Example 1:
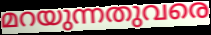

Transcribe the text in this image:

മറയുന്നതുവരെ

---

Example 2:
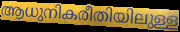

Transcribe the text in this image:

ആധുനികരീതിയിലുള്ള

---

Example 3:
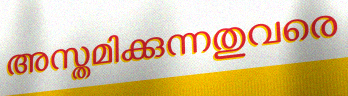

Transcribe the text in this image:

അസ്തമിക്കുന്നതുവരെ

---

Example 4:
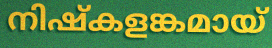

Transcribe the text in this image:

നിഷ്കളങ്കമായ്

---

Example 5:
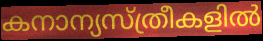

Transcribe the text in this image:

കനാന്യസ്ത്രീകളിൽ